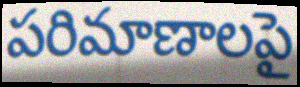
పరిమాణాలపై